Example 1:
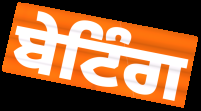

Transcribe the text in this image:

ਬੇਟਿੰਗ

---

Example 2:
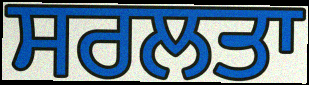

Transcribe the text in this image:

ਸਰਲਤਾ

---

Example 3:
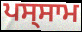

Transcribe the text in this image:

ਪਸ੍ਸਾਮ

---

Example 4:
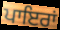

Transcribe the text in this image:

ਪਾਇਰਾਂ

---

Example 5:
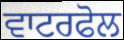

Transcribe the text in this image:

ਵਾਟਰਫੋਲ